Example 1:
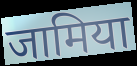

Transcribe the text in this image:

जामिया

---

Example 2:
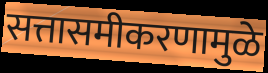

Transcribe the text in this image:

सत्तासमीकरणामुळे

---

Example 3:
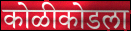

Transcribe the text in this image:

कोळीकोडला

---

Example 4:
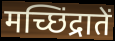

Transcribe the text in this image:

मच्छिंद्रातें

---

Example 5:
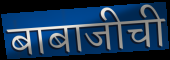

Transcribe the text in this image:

बाबाजीची